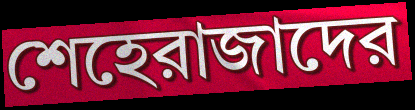
শেহেরাজাদের